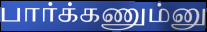
பார்க்கணும்னு